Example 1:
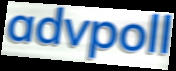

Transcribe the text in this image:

advpoll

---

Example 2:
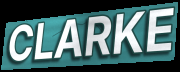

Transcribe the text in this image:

CLARKE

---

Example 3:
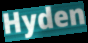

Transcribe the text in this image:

Hyden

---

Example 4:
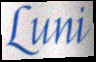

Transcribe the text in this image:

Luni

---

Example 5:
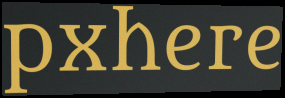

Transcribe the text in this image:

pxhere